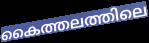
കൈത്തലത്തിലെ